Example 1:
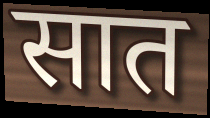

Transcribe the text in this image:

सात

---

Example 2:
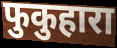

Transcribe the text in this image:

फुकुहारा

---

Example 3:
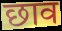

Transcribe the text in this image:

छाव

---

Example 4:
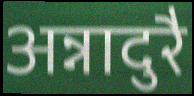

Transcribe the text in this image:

अन्नादुरै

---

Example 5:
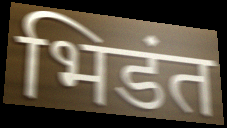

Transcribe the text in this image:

भिडंत